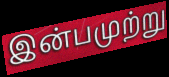
இன்பமுற்று